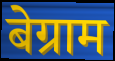
बेग्राम